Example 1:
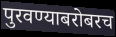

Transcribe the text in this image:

पुरवण्याबरोबरच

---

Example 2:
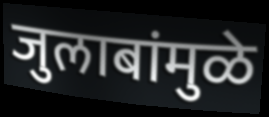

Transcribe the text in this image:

जुलाबांमुळे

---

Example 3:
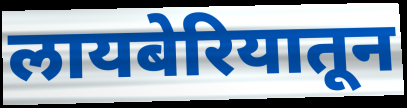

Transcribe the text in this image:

लायबेरियातून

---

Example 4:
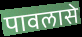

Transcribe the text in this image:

पावलासे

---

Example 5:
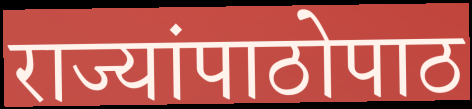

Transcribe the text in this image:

राज्यांपाठोपाठ